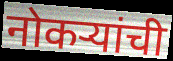
नोकऱ्यांची